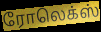
ரோலெக்ஸ்